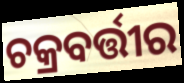
ଚକ୍ରବର୍ତ୍ତୀର